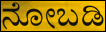
ನೋಬಡಿ